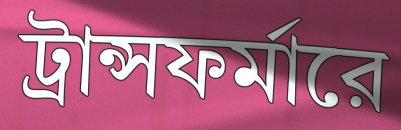
ট্রান্সফর্মারে